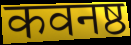
कवनष्ठ